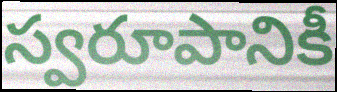
స్వరూపానికీ